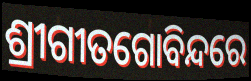
ଶ୍ରୀଗୀତଗୋବିନ୍ଦରେ